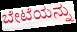
ಬೇಟೆಯನ್ನು